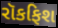
રૉકફિશ